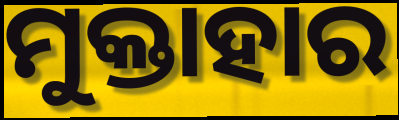
ମୁକ୍ତାହାର